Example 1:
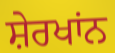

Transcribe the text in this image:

ਸ਼ੇਰਖਾਂਨ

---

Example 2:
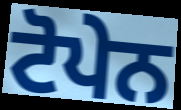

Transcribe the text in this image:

ਟੋਪੇਨ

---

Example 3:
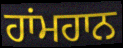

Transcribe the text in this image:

ਹਾਂਮਹਾਨ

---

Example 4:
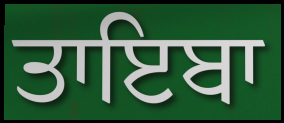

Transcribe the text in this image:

ਤਾਇਬਾ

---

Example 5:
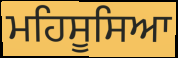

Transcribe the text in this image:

ਮਹਿਸੂਸਿਆ